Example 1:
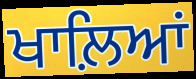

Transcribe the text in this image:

ਖਾਲ਼ਿਆਂ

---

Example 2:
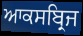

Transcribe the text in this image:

ਆਕਸਬ੍ਰਿਜ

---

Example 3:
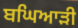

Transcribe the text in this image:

ਬਘਿਆੜੀ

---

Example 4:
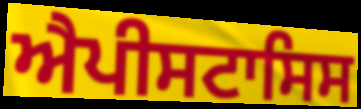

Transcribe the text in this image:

ਐਪੀਸਟਾਸਿਸ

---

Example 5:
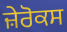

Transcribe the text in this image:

ਜ਼ੇਰੋਕਸ